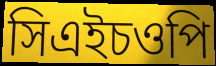
সিএইচওপি